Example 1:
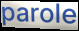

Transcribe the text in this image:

parole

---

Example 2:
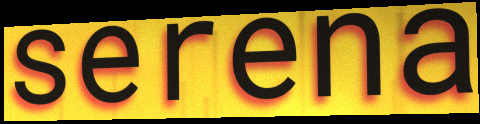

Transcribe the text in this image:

serena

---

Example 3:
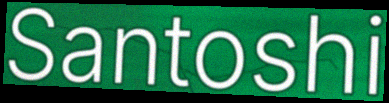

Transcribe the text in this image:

Santoshi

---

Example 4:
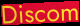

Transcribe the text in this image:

Discom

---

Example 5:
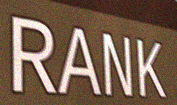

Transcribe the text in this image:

RANK